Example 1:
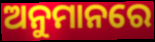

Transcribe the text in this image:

ଅନୁମାନରେ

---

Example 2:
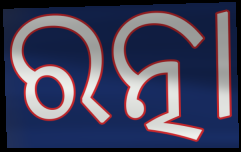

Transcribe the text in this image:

ରତ୍ନା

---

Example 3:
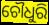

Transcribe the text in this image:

ଚୌଧୁରି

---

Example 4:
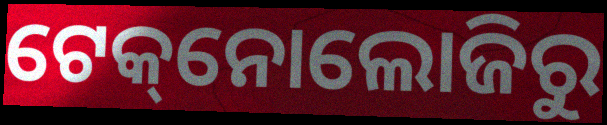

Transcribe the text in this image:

ଟେକ୍‌ନୋଲୋଜିରୁ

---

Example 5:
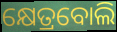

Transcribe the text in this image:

କ୍ଷେତ୍ରବୋଲି